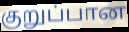
குறுப்பான